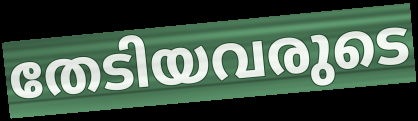
തേടിയവരുടെ